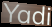
Yadi